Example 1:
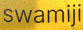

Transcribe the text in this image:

swamiji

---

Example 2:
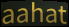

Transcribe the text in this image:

aahat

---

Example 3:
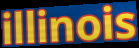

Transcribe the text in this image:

illinois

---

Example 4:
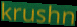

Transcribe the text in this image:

krushn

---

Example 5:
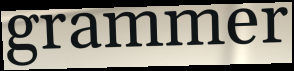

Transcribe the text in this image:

grammer